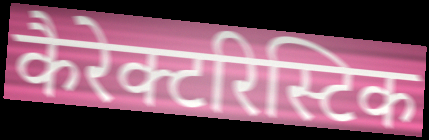
कैरेक्टरिस्टिक